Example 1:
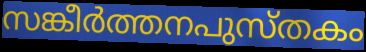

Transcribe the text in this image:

സങ്കീർത്തനപുസ്തകം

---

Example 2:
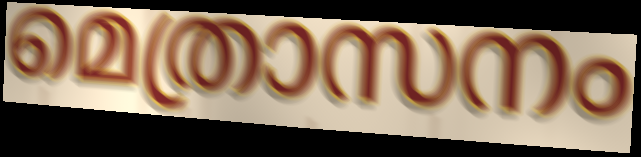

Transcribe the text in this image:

മെത്രാസനം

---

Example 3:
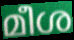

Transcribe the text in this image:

മീശ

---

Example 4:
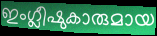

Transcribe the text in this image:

ഇംഗ്ലീഷുകാരുമായ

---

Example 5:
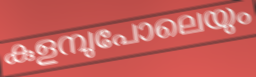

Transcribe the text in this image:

കുളമ്പുപോലെയും